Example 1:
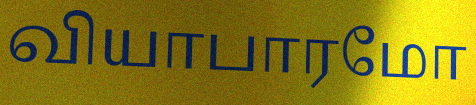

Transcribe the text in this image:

வியாபாரமோ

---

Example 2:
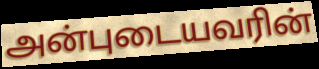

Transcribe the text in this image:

அன்புடையவரின்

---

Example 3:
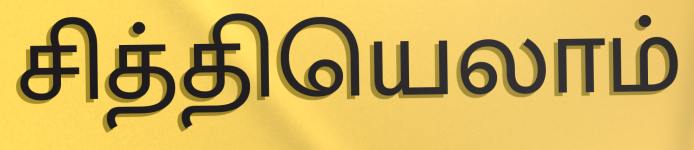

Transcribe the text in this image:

சித்தியெலாம்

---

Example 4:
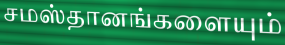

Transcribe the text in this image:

சமஸ்தானங்களையும்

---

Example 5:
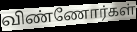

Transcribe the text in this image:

விண்ணோர்கள்